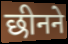
छीनने